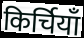
किर्चियाँ